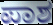
ಪಾಶ